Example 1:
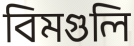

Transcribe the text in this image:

বিমগুলি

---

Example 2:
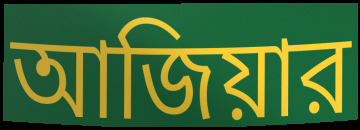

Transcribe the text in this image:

আজিয়ার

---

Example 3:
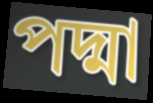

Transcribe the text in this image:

পদ্মা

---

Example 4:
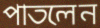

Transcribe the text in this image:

পাতলেন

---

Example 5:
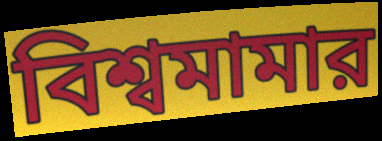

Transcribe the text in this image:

বিশ্বমামার